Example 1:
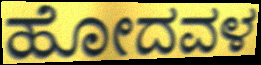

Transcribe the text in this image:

ಹೋದವಳ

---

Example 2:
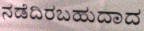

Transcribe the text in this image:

ನಡೆದಿರಬಹುದಾದ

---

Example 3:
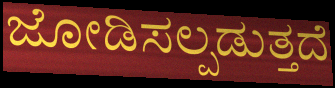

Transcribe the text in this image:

ಜೋಡಿಸಲ್ಪಡುತ್ತದೆ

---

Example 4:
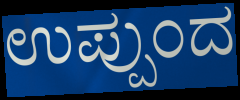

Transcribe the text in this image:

ಉಪ್ಪುಂದ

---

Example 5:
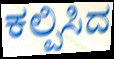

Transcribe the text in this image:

ಕಲ್ಪಿಸಿದ